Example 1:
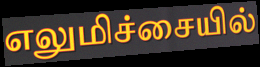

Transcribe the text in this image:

எலுமிச்சையில்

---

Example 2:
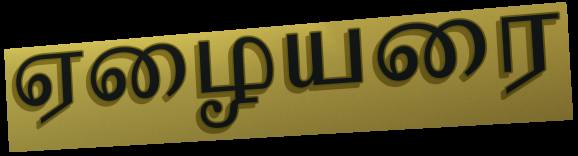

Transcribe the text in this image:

ஏழையரை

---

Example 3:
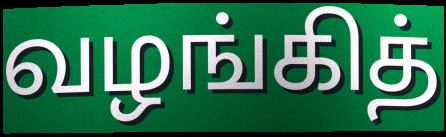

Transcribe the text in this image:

வழங்கித்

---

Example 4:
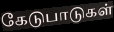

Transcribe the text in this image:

கேடுபாடுகள்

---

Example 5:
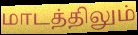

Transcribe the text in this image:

மாடத்திலும்